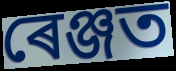
ৰেঞ্জত